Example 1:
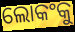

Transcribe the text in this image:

ଲୋକଂକୁ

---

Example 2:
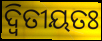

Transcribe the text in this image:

ଦ୍ବିତୀୟତଃ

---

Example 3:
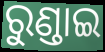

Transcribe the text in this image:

ରୁଣ୍ଡାଇ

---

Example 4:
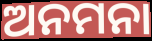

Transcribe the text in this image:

ଅନମନା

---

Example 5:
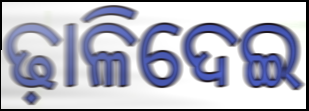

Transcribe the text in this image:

ଢ଼ାଳିଦେଇ